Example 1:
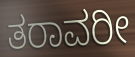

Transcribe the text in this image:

ತರಾವರೀ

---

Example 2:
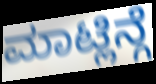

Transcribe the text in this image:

ಮಾಟ್ಲಿನ್ಗೆ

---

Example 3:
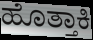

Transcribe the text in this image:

ಹೊತ್ತಾಕಿ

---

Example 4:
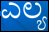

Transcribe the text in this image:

ಎಲ್ಯ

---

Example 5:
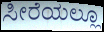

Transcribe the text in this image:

ಸೀರೆಯಲ್ಲೂ